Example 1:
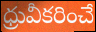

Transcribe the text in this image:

ధ్రువీకరించే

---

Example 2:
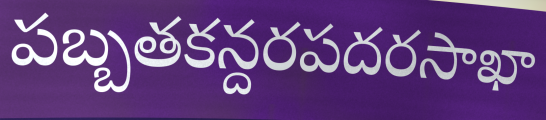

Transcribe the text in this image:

పబ్బతకన్దరపదరసాఖా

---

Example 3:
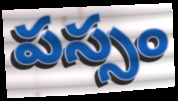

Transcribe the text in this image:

పస్సం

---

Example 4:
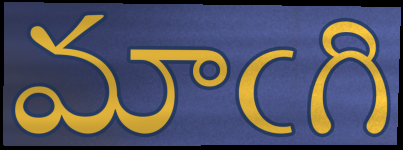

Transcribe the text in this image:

మాఁగి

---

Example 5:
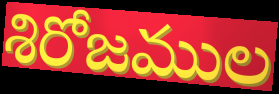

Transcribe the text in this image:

శిరోజముల